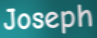
Joseph